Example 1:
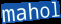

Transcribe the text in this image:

mahol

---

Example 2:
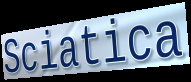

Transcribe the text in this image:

Sciatica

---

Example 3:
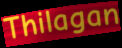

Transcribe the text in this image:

Thilagan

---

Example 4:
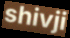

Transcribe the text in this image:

shivji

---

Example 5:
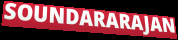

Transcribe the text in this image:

SOUNDARARAJAN